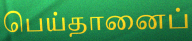
பெய்தானைப்